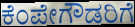
ಕೆಂಪೇಗೌಡರಿಗೆ